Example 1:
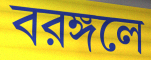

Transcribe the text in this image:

বরঙ্গলে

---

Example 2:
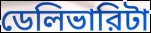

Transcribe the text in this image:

ডেলিভারিটা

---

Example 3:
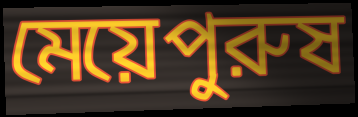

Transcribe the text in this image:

মেয়েপুরুষ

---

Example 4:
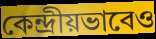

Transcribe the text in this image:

কেন্দ্রীয়ভাবেও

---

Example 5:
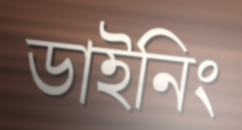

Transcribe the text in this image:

ডাইনিং